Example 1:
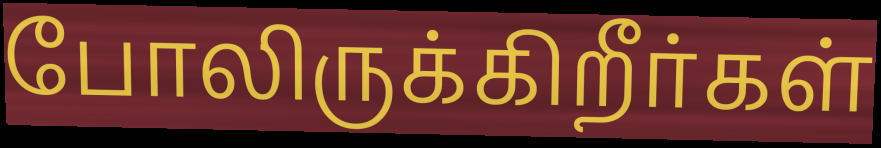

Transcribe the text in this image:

போலிருக்கிறீர்கள்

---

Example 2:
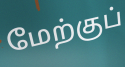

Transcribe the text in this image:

மேற்குப்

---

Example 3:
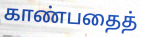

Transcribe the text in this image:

காண்பதைத்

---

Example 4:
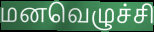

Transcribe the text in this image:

மனவெழுச்சி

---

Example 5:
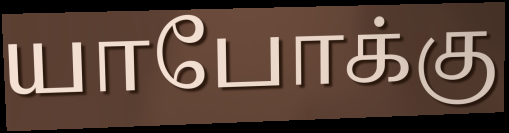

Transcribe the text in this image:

யாபோக்கு